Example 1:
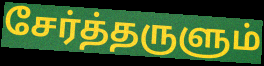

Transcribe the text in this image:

சேர்த்தருளும்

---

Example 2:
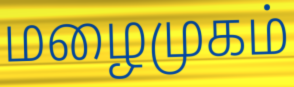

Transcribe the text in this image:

மழைமுகம்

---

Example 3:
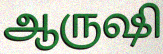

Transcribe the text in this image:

ஆருஷி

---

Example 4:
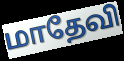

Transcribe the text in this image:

மாதேவி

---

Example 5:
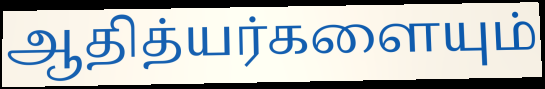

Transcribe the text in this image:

ஆதித்யர்களையும்